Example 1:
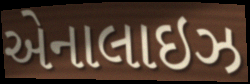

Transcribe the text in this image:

એનાલાઇઝ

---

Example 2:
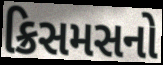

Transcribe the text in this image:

ક્રિસમસનો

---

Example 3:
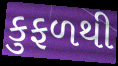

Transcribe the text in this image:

કુફળથી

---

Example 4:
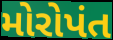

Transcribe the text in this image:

મોરોપંત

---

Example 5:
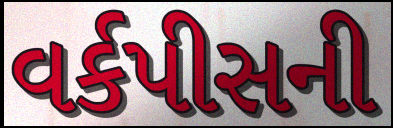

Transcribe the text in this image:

વર્કપીસની